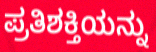
ಪ್ರತಿಶಕ್ತಿಯನ್ನು